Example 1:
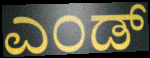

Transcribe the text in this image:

ಎಂಡ್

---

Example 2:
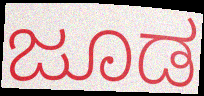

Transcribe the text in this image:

ಜೂಡ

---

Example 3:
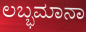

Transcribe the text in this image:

ಲಬ್ಭಮಾನಾ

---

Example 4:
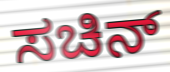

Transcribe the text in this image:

ಸಚಿನ್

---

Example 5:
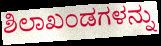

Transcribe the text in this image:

ಶಿಲಾಖಂಡಗಳನ್ನು